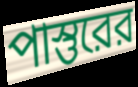
পাস্তুরের